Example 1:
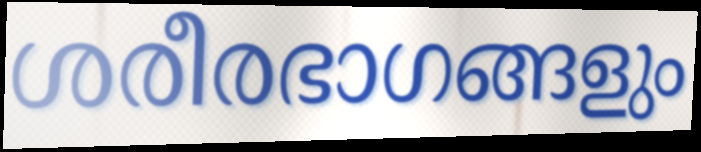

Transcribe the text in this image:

ശരീരഭാഗങ്ങളും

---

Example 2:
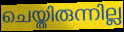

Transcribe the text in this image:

ചെയ്തിരുന്നില്ല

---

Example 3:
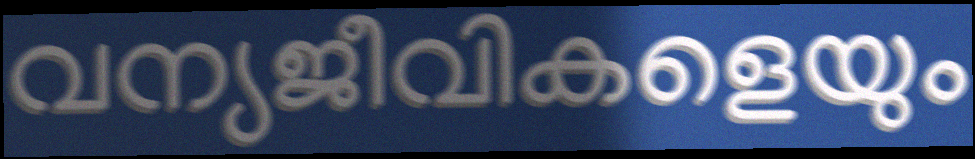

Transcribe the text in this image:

വന്യജീവികളെയും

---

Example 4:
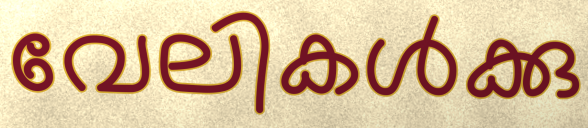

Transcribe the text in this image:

വേലികൾക്കു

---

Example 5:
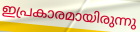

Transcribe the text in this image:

ഇപ്രകാരമായിരുന്നു